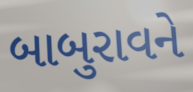
બાબુરાવને